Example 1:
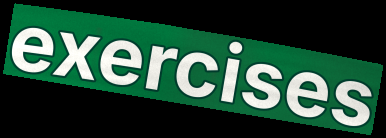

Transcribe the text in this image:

exercises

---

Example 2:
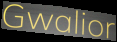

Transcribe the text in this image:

Gwalior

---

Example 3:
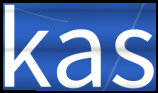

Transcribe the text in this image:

kas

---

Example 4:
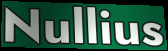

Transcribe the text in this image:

Nullius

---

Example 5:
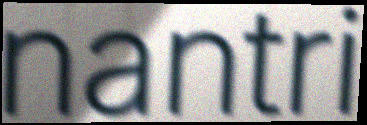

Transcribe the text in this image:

nantri